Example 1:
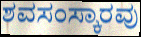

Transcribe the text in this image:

ಶವಸಂಸ್ಕಾರವು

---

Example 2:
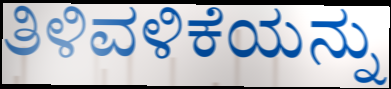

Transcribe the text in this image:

ತಿಳಿವಳಿಕೆಯನ್ನು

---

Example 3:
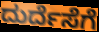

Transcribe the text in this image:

ದುರ್ದೆಸೆಗೆ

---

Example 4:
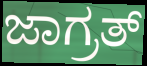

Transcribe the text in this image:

ಜಾಗ್ರತ್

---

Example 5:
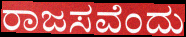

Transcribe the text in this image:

ರಾಜಸವೆಂದು